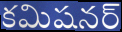
కమిషనర్